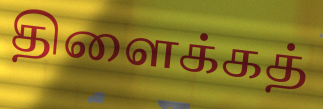
திளைக்கத்